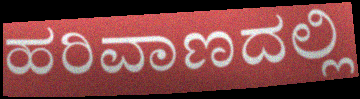
ಹರಿವಾಣದಲ್ಲಿ